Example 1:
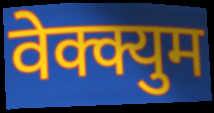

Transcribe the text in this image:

वेक्क्युम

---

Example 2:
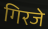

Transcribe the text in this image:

गिरजे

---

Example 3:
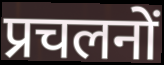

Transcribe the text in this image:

प्रचलनों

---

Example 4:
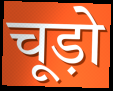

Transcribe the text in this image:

चूड़ो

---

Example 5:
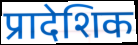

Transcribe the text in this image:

प्रादेशिक